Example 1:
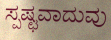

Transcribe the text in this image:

ಸ್ಪಷ್ಟವಾದುವು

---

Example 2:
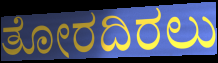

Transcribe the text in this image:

ತೋರದಿರಲು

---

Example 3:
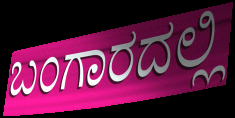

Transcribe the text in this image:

ಬಂಗಾರದಲ್ಲಿ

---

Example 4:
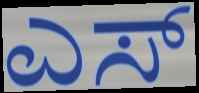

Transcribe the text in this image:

ಎಸ್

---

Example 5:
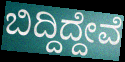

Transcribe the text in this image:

ಬಿದ್ದಿದ್ದೇವೆ